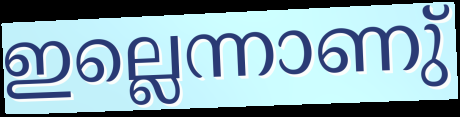
ഇല്ലെന്നാണു്